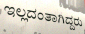
ಇಲ್ಲದಂತಾಗಿದ್ದರು